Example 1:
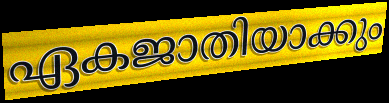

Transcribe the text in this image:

ഏകജാതിയാക്കും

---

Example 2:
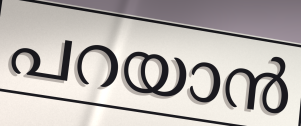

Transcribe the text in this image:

പറയാൻ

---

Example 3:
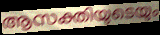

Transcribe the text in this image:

ആസക്തിയുടെയും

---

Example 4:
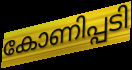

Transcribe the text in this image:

കോണിപ്പടി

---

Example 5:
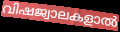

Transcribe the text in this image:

വിഷജ്വാലകളാൽ